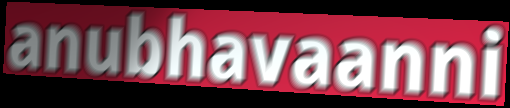
anubhavaanni